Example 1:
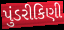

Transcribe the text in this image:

પુંડરીકિણી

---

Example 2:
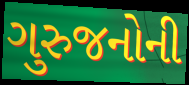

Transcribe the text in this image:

ગુરુજનોની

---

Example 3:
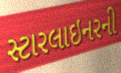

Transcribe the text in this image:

સ્ટારલાઇનરની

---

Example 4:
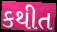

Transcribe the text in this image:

કથીત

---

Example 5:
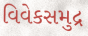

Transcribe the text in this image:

વિવેકસમુદ્ર